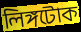
লিঙ্গটোক